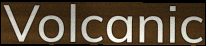
Volcanic